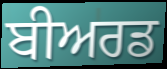
ਬੀਅਰਡ